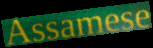
Assamese